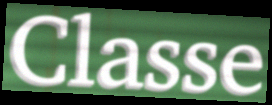
Classe